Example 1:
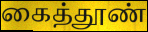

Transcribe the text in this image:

கைத்தூண்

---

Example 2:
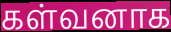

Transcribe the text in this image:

கள்வனாக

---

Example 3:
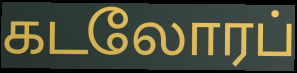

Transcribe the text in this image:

கடலோரப்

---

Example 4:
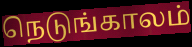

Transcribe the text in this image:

நெடுங்காலம்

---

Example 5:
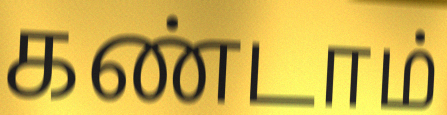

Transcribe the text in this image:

கண்டாம்